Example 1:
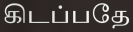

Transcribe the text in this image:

கிடப்பதே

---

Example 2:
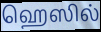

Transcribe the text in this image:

ஹெஸில்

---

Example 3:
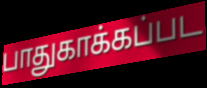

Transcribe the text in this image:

பாதுகாக்கப்பட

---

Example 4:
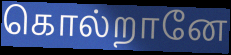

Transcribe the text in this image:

கொல்றானே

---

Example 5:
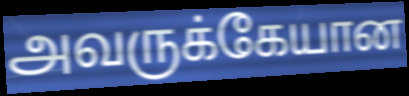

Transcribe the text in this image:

அவருக்கேயான